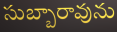
సుబ్బారావును